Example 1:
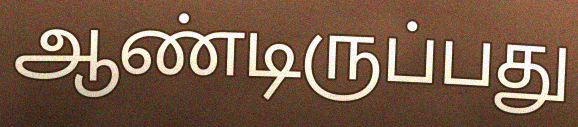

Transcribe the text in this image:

ஆண்டிருப்பது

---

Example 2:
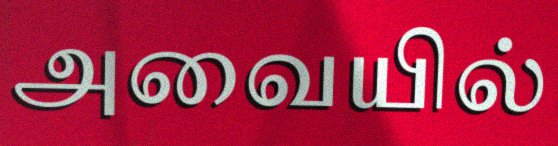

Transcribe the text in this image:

அவையில்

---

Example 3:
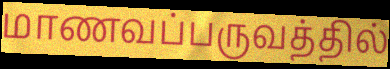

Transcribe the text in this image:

மாணவப்பருவத்தில்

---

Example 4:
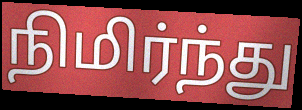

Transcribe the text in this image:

நிமிர்ந்து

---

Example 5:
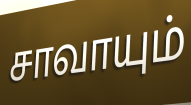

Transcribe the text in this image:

சாவாயும்